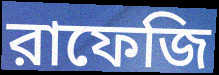
রাফেজি